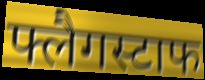
फ्लैगस्टाफ